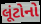
લૂંટોનો